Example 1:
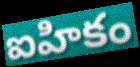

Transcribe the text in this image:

ఐహికం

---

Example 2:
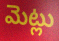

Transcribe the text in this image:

మెట్లు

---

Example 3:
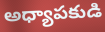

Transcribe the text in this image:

అధ్యాపకుడి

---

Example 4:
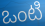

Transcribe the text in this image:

ఒంటి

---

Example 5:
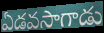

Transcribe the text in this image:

ఏడవసాగాడు